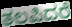
ತಲಪಿದರೆ